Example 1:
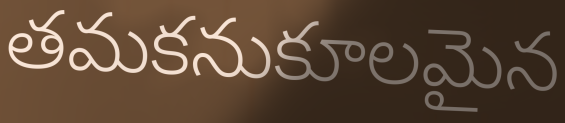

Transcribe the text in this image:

తమకనుకూలమైన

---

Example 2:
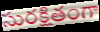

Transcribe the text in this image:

సురక్షితంగా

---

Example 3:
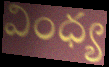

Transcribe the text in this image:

వింధ్య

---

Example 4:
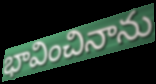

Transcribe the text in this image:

భావించినాను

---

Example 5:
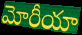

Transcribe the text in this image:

మోరీయా